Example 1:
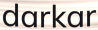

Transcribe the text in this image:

darkar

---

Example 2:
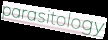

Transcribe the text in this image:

parasitology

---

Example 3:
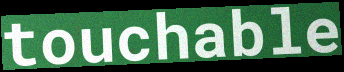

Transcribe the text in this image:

touchable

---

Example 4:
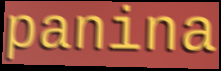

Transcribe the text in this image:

panina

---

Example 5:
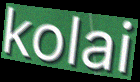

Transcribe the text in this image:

kolai